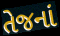
તેજનાં